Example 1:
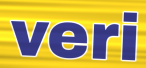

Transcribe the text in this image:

veri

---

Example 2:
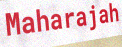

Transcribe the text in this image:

Maharajah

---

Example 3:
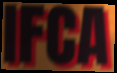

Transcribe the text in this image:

IFCA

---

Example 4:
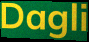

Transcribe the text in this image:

Dagli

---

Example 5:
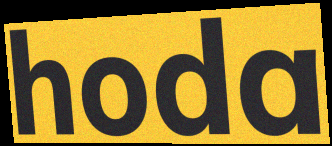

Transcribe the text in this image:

hoda